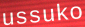
ussuko